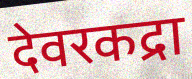
देवरकद्रा